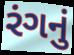
રંગનું